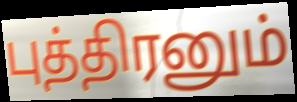
புத்திரனும்